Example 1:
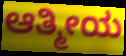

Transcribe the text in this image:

ಆತ್ಮೀಯ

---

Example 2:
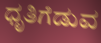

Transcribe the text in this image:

ಧೃತಿಗೆಡುವ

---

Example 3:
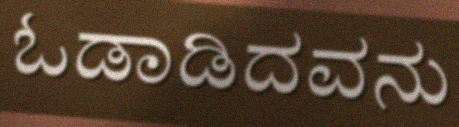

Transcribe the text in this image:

ಓಡಾಡಿದವನು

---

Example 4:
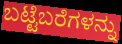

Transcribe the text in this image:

ಬಟ್ಟೆಬರೆಗಳನ್ನು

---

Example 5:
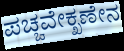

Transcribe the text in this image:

ಪಚ್ಚವೇಕ್ಖಣೇನ